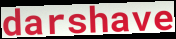
darshave